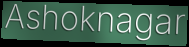
Ashoknagar